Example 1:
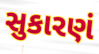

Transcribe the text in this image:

સુકારણં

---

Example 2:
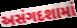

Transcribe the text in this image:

અસંગદશામાં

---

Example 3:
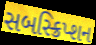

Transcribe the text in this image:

સબસ્ક્રિપ્શન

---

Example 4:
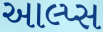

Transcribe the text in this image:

આલ્પ્સ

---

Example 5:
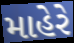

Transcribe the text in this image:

માહેરે